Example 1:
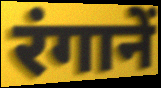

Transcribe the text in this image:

रंगानें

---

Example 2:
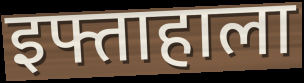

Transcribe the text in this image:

इफ्ताहाला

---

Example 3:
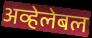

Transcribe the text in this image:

अव्हेलेबल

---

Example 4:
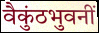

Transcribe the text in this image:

वैकुंठभुवनीं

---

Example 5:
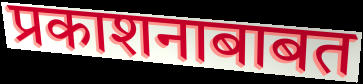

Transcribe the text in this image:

प्रकाशनाबाबत